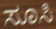
ಸೂಸಿ